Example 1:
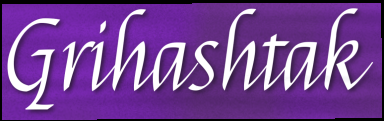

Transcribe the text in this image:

Grihashtak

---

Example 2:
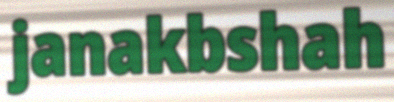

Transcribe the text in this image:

janakbshah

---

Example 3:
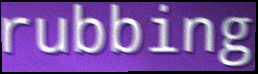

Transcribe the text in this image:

rubbing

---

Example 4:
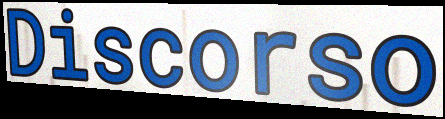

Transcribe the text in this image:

Discorso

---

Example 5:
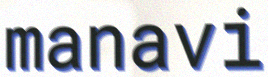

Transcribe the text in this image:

manavi